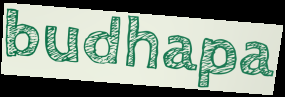
budhapa